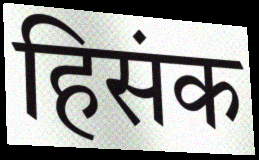
हिसंक